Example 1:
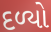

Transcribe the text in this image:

દળ્યો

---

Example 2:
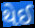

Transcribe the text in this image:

થેઈ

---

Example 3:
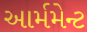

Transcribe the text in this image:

આર્મમેન્ટ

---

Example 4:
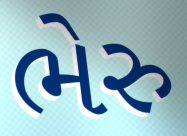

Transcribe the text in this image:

ભેરુ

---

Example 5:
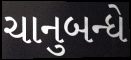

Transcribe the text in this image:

ચાનુબન્ધે